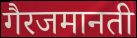
गैरजमानती